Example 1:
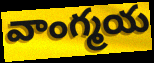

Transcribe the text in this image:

వాంగ్మయ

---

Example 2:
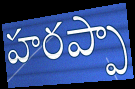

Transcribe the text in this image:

హరప్పా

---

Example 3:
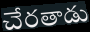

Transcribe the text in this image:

చేరతాడు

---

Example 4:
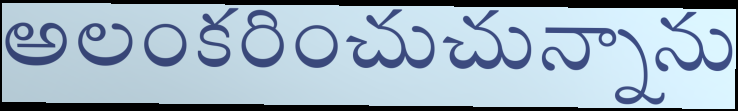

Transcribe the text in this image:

అలంకరించుచున్నాను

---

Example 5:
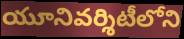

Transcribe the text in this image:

యూనివర్శిటీలోని